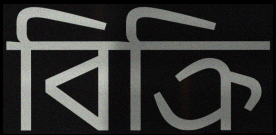
বিক্ৰি